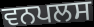
ਵਨਪਲਸ